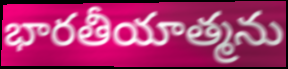
భారతీయాత్మను